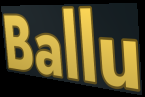
Ballu